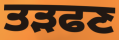
ਤੜਫਣ